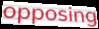
opposing